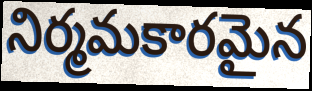
నిర్మమకారమైన